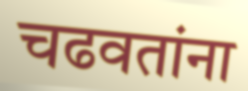
चढवतांना